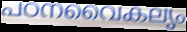
പഠനവൈകല്യം